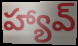
హ్యావ్